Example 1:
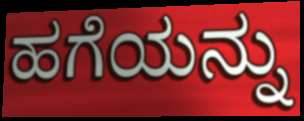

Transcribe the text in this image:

ಹಗೆಯನ್ನು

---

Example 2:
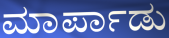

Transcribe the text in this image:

ಮಾರ್ಪಾಡು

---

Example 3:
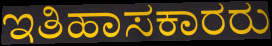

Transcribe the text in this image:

ಇತಿಹಾಸಕಾರರು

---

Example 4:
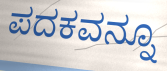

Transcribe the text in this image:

ಪದಕವನ್ನೂ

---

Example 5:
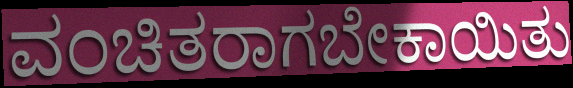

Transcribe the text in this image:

ವಂಚಿತರಾಗಬೇಕಾಯಿತು